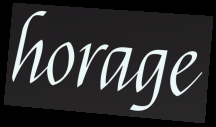
horage